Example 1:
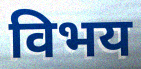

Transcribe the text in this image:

विभय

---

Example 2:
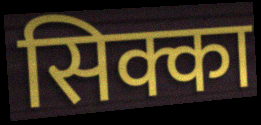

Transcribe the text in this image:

सिक्‍का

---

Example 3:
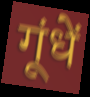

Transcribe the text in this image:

गूंधें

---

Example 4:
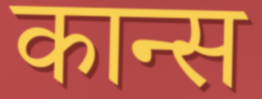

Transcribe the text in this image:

कान्स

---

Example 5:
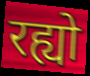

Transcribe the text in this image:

रह्यो